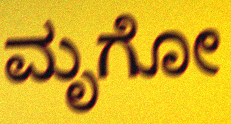
ಮೃಗೋ